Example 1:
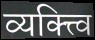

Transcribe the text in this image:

व्यक्त्त्वि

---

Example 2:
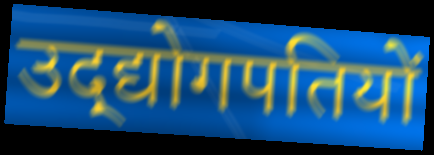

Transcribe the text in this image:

उद्द्योगपतियों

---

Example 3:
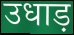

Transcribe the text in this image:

उधाड़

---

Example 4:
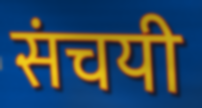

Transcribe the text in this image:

संचयी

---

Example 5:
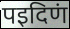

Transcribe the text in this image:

पइदिणं